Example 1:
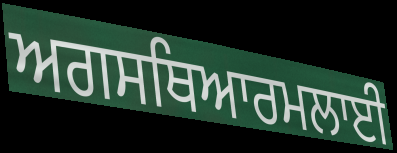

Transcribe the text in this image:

ਅਗਸਥਿਆਰਮਲਾਈ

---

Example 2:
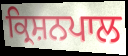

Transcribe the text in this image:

ਕ੍ਰਿਸ਼ਨਪਾਲ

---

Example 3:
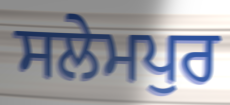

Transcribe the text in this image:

ਸਲੇਮਪੁਰ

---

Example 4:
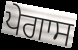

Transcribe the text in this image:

ਪੇਗਾਸ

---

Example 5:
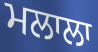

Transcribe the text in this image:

ਮਲਾਲਾ